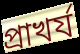
প্রাখর্য